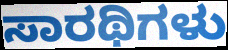
ಸಾರಥಿಗಳು